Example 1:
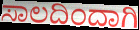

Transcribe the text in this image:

ಸಾಲದಿಂದಾಗಿ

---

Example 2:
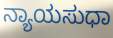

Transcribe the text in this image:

ನ್ಯಾಯಸುಧಾ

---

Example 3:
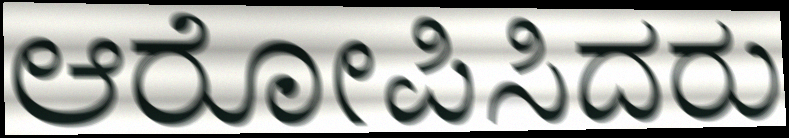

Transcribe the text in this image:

ಆರೋಪಿಸಿದರು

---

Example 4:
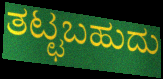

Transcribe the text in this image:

ತಟ್ಟಬಹುದು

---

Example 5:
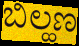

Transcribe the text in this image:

ಬಿಲ್ಹಣ